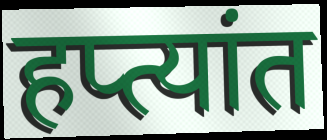
हप्त्यांत